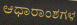
ಆಧಾರಾಂಶಗಳ